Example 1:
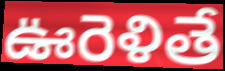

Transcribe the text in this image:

ఊరెళితే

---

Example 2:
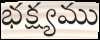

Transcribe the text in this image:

భక్ష్యము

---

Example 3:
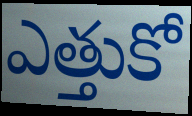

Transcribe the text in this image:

ఎత్తుకో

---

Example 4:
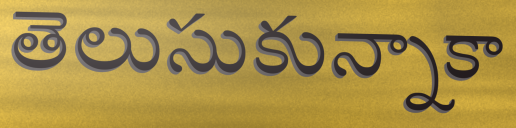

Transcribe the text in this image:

తెలుసుకున్నాకా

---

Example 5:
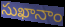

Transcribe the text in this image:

సుఖానాం